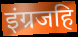
इंग्रजहि